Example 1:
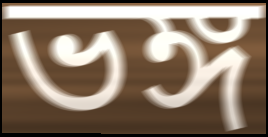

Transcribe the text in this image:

ভঙ্গ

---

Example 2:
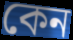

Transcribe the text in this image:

কেন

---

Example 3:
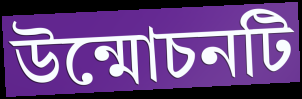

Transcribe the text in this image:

উন্মোচনটি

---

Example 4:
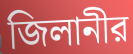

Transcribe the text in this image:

জিলানীর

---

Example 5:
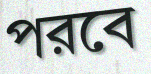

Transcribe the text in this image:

পরবে